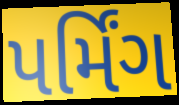
પર્મિંગ